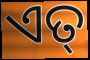
ଏତ୍